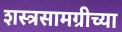
शस्त्रसामग्रीच्या